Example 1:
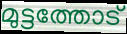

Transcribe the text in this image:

മുട്ടത്തോട്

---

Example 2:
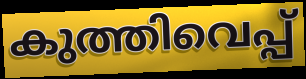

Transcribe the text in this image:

കുത്തിവെപ്പ്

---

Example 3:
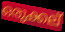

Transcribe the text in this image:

ഒരുക്കല്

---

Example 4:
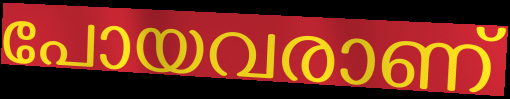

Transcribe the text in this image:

പോയവരാണ്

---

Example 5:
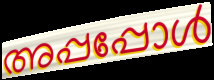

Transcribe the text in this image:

അപ്പപ്പോൾ